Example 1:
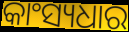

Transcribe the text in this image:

କାଂସ୍ୟଧାର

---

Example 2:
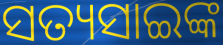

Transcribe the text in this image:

ସତ୍ୟସାଇଙ୍କ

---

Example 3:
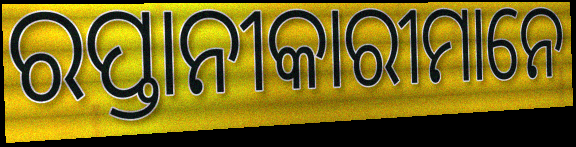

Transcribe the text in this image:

ରପ୍ତାନୀକାରୀମାନେ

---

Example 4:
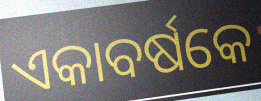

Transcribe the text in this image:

ଏକାବର୍ଷକେ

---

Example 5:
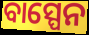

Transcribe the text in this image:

ବାସ୍ପେନ